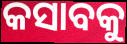
କସାବକୁ